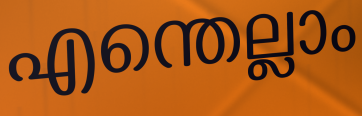
എന്തെല്ലാം